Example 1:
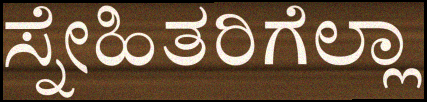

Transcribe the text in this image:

ಸ್ನೇಹಿತರಿಗೆಲ್ಲಾ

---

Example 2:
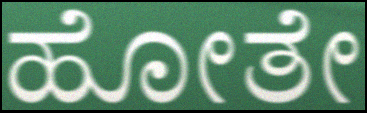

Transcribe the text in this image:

ಹೋತೇ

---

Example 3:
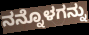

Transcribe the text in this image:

ನನ್ನೊಳಗನ್ನು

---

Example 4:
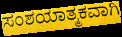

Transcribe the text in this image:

ಸಂಶಯಾತ್ಮಕವಾಗಿ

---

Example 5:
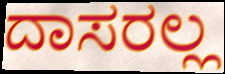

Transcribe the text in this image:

ದಾಸರಲ್ಲ